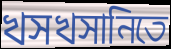
খসখসানিতে